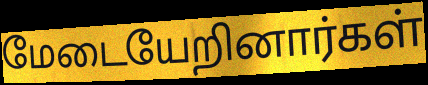
மேடையேறினார்கள்